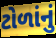
ટોળાંનું